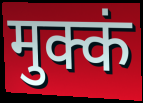
मुक्कं